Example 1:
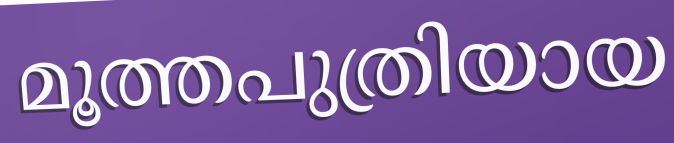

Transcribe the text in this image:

മൂത്തപുത്രിയായ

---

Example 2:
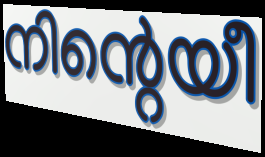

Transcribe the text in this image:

നിന്റെയീ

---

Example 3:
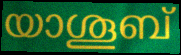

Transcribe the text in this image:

യാശൂബ്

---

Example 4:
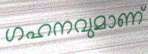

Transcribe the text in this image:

ഗഹനവുമാണ്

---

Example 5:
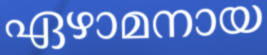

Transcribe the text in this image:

ഏഴാമനായ